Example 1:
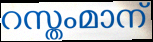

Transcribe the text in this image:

റസ്തംമാന്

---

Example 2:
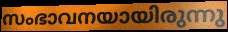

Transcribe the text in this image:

സംഭാവനയായിരുന്നു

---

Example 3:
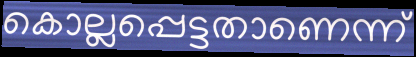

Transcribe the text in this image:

കൊല്ലപ്പെട്ടതാണെന്ന്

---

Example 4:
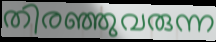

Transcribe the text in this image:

തിരഞ്ഞുവരുന്ന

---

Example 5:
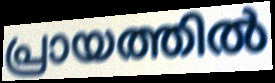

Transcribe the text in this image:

പ്രായത്തിൽ